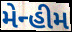
મેન્હીમ